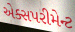
એક્સપરીમેન્ટ